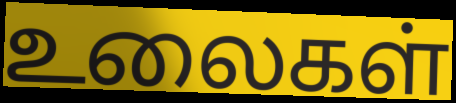
உலைகள்